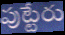
పుట్టేరు